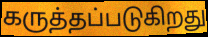
கருத்தப்படுகிறது